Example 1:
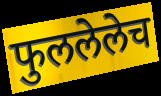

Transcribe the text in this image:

फुललेलेच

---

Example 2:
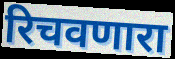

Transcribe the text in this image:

रिचवणारा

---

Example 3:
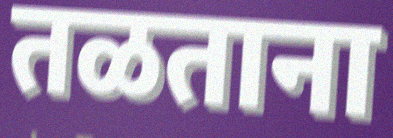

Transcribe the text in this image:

तळताना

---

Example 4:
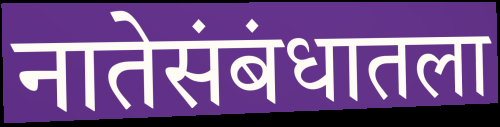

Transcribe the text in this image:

नातेसंबंधातला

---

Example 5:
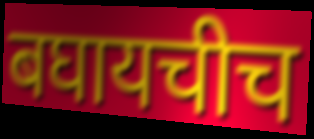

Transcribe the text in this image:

बघायचीच